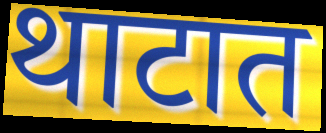
थाटात